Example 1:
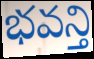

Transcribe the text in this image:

భవన్తి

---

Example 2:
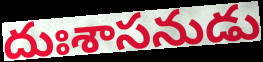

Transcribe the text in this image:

దుఃశాసనుడు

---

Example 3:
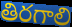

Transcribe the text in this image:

తిరగాలి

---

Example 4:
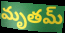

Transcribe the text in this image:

మృతమ్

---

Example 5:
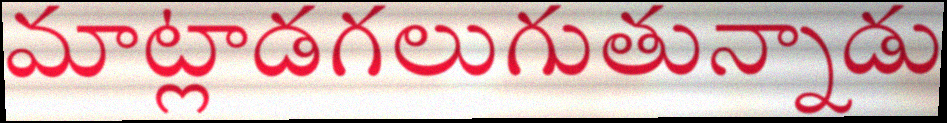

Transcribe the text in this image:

మాట్లాడగలుగుతున్నాడు